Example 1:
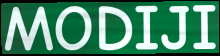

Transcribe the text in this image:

MODIJI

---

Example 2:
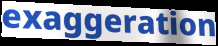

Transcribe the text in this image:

exaggeration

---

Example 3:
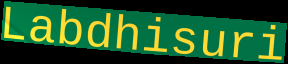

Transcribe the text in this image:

Labdhisuri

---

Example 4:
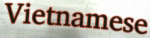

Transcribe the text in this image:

Vietnamese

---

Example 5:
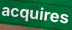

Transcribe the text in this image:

acquires